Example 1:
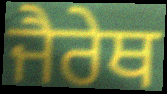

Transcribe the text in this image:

ਜੈਰੇਥ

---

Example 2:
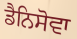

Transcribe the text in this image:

ਡੈਨਿਸੋਵਾ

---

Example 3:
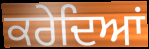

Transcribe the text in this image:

ਕਰੇਦਿਆਂ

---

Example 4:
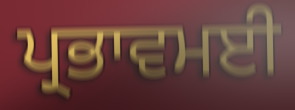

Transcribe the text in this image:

ਪ੍ਰਭਾਵਮਈ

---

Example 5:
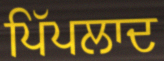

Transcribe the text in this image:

ਪਿੱਪਲਾਦ